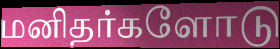
மனிதர்களோடு